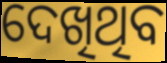
ଦେଖିଥିବ